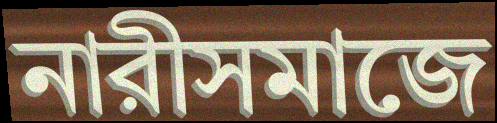
নারীসমাজে